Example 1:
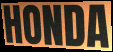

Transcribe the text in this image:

HONDA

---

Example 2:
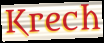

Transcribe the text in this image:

Krech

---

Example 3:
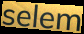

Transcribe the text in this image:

selem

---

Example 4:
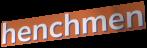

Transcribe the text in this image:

henchmen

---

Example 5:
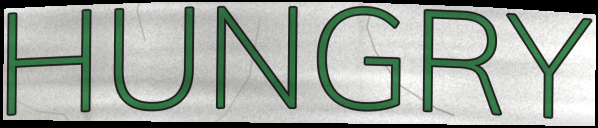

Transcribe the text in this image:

HUNGRY